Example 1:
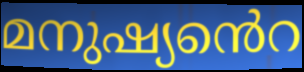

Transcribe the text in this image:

മനുഷ്യൻെറ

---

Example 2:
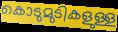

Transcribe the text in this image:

കൊടുമുടികളുള്ള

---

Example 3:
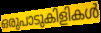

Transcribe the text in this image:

ഒരുപാടുകിളികൾ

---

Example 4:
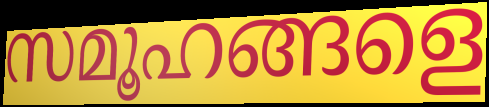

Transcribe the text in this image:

സമൂഹങ്ങളെ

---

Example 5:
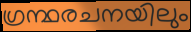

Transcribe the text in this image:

ഗ്രന്ഥരചനയിലും